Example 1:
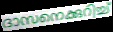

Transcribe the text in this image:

ദാസനെക്കുറിച്ച്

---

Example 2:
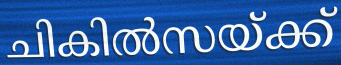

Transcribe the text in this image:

ചികിൽസയ്ക്ക്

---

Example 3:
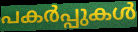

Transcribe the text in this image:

പകർപ്പുകൾ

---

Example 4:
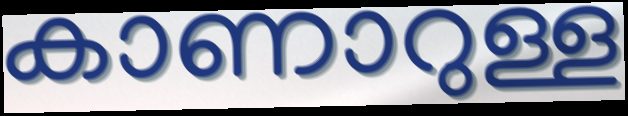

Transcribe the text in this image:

കാണാറുള്ള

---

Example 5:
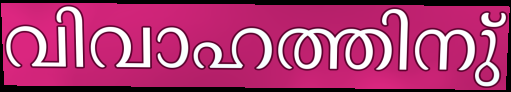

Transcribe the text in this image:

വിവാഹത്തിനു്